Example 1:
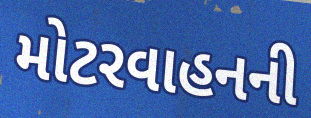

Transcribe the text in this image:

મોટરવાહનની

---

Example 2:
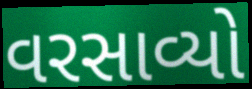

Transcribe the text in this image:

વરસાવ્યો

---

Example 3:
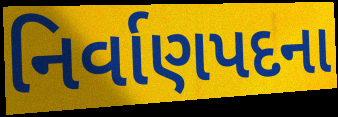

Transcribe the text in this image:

નિર્વાણપદના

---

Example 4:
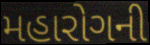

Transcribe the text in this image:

મહારોગની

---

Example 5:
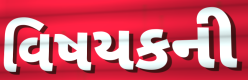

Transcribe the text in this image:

વિષયકની